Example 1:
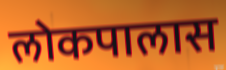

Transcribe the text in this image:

लोकपालास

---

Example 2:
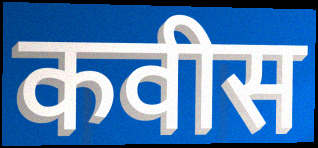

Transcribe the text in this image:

कवीस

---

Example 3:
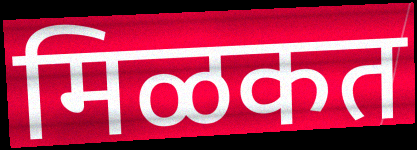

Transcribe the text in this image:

मिळकत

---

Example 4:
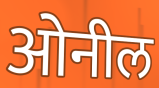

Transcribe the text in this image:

ओनील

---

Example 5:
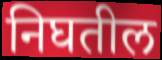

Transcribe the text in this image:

निघतील